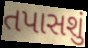
તપાસશું